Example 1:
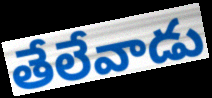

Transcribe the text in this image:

తేలేవాడు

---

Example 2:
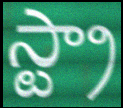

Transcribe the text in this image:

స్ట్రా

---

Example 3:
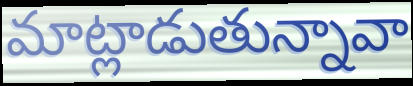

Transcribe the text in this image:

మాట్లాడుతున్నావా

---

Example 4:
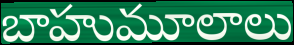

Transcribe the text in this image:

బాహుమూలాలు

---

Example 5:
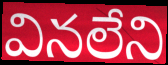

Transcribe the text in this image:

వినలేని